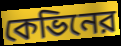
কেভিনের